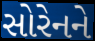
સોરેનને